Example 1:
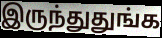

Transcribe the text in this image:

இருந்துதுங்க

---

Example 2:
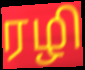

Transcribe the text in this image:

ரழி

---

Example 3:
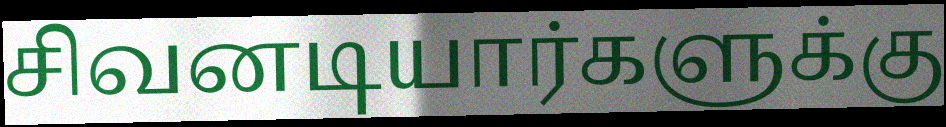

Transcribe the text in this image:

சிவனடியார்களுக்கு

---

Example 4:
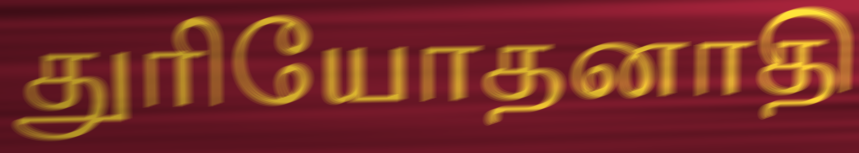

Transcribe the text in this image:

துரியோதனாதி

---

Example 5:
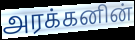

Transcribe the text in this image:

அரக்கனின்